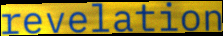
revelation